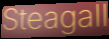
Steagall